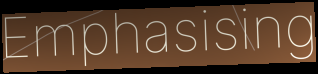
Emphasising